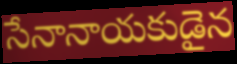
సేనానాయకుడైన